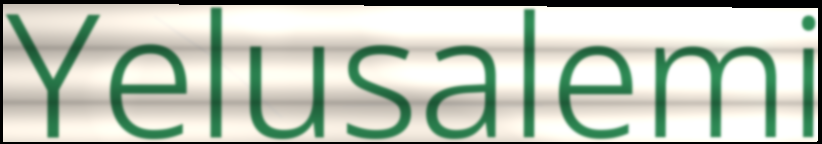
Yelusalemi